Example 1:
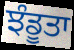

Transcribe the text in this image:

ਝੰਡੂਤਾ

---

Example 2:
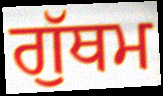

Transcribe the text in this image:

ਗੁੱਥਮ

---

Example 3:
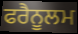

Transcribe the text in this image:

ਫਰੈਨੂਲਮ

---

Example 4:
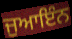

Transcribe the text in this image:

ਜੁਆਇੰਨ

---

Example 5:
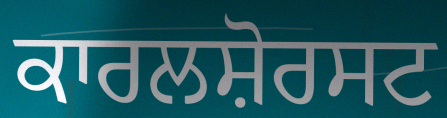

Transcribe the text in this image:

ਕਾਰਲਸ਼ੋਰਸਟ